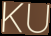
KU